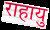
राहायु